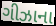
ગીઝાના